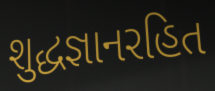
શુદ્ધજ્ઞાનરહિત